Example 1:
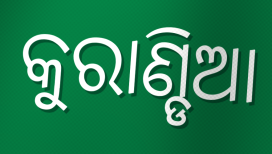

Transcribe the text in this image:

କୁରାଣ୍ଡିଆ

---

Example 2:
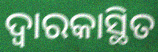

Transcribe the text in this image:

ଦ୍ୱାରକାସ୍ଥିତ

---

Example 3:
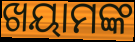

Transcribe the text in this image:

ଖୟାମଙ୍କ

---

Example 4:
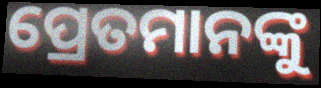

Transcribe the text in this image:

ପ୍ରେତମାନଙ୍କୁ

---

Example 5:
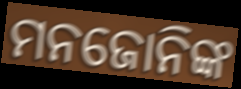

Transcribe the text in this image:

ମନଜୋନିଙ୍କ